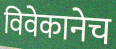
विवेकानेच